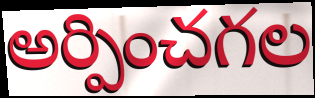
అర్పించగల